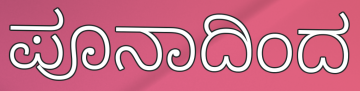
ಪೂನಾದಿಂದ